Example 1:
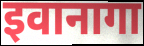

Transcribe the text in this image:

इवानागा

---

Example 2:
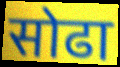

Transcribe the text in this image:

सोढा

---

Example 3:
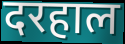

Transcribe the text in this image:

दरहाल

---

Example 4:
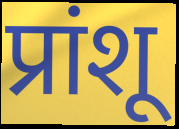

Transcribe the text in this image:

प्रांशू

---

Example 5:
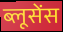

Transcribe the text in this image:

ब्लूसेंस